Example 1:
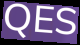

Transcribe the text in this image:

QES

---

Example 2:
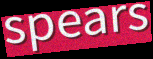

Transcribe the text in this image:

spears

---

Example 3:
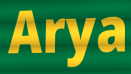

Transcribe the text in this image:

Arya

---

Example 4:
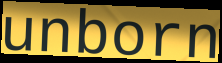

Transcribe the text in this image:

unborn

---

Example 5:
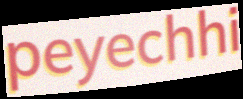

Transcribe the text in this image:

peyechhi